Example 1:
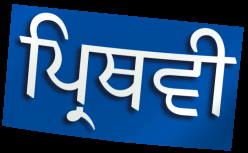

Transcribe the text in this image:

ਪ੍ਰਿਥਵੀ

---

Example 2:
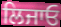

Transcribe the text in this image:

ਲਿਜਾਓ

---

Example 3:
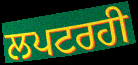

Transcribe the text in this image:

ਲਪਟਰਹੀ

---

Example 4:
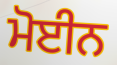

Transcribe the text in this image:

ਮੋਈਨ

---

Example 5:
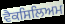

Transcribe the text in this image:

ਵੈਕਸਿਲਿਅਮ